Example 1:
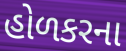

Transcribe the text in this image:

હોળકરના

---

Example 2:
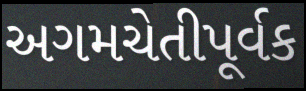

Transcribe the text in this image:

અગમચેતીપૂર્વક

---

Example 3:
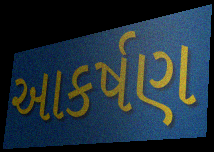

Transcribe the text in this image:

આકર્ષણ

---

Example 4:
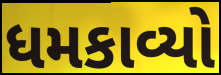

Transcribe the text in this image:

ધમકાવ્યો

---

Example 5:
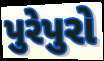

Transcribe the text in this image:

પુરેપુરો